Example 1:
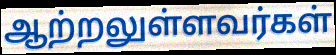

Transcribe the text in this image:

ஆற்றலுள்ளவர்கள்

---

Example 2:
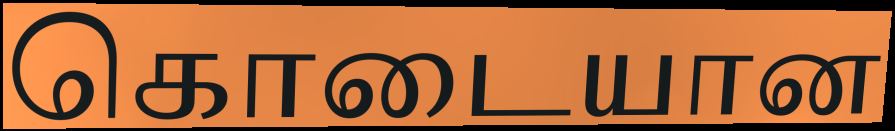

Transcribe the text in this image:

கொடையான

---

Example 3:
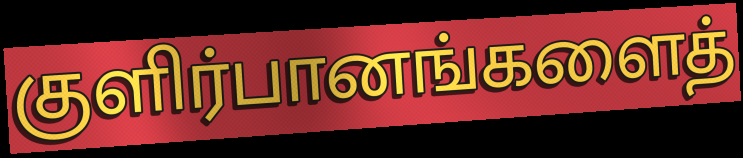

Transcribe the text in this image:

குளிர்பானங்களைத்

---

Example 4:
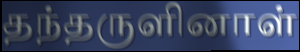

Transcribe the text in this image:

தந்தருளினாள்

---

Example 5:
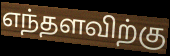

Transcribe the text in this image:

எந்தளவிற்கு